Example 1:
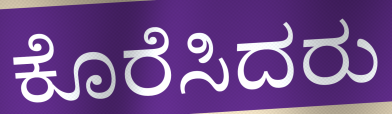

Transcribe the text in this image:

ಕೊರೆಸಿದರು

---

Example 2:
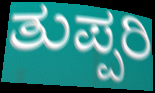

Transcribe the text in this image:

ತುಪ್ಪರಿ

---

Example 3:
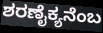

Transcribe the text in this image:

ಶರಣೈಕ್ಯನೆಂಬ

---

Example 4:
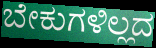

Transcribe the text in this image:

ಬೇಕುಗಳಿಲ್ಲದ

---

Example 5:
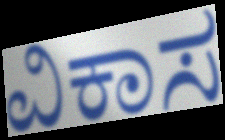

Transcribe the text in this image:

ವಿಕಾಸ